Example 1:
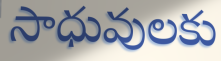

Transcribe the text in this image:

సాధువులకు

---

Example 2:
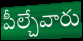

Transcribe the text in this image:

పీల్చేవారు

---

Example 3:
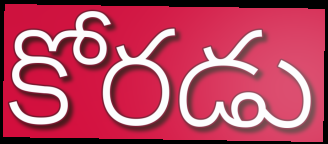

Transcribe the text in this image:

కోరడు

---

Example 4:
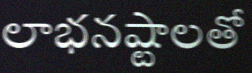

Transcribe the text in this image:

లాభనష్టాలతో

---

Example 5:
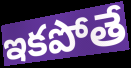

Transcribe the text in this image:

ఇకపోతే